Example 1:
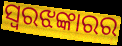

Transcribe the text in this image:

ସ୍ୱରଝଙ୍କାରର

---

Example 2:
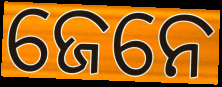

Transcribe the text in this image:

ଜେନେ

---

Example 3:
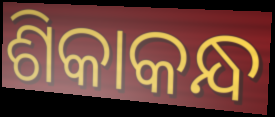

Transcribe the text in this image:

ଶିକାକନ୍ଧ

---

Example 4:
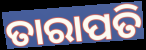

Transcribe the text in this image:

ତାରାପତି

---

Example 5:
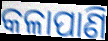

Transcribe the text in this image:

କଳାପାଣି